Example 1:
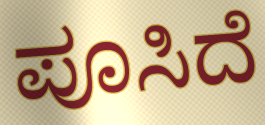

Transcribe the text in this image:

ಪೂಸಿದೆ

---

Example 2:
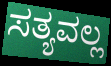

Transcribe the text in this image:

ಸತ್ಯವಲ್ಲ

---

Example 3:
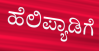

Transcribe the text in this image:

ಹೆಲಿಪ್ಯಾಡಿಗೆ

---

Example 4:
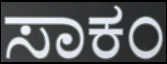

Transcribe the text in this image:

ಸಾಕಂ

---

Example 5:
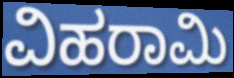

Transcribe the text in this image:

ವಿಹರಾಮಿ